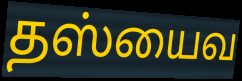
தஸ்யைவ